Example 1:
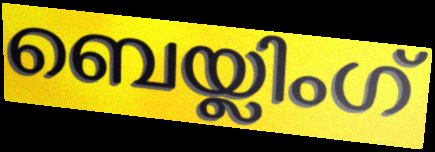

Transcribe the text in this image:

ബെയ്ലിംഗ്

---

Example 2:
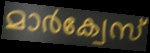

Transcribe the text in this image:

മാർക്വേസ്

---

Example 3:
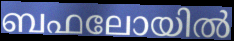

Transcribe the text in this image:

ബഫലോയിൽ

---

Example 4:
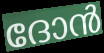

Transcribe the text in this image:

ദോൻ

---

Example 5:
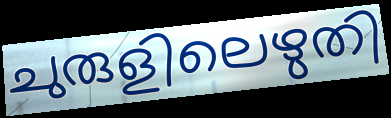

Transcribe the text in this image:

ചുരുളിലെഴുതി